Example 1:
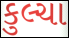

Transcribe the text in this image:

કુલ્ચા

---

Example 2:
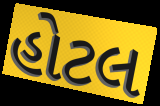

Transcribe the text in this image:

હોટલ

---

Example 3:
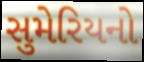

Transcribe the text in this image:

સુમેરિયનો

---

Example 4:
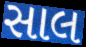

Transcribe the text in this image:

સાલ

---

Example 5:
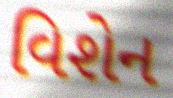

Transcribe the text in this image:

વિશેન